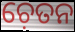
ଚ଼େତନ